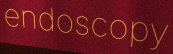
endoscopy